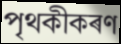
পৃথকীকৰণ